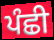
ਪੰਛੀ